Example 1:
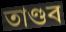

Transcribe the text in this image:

তাণ্ডব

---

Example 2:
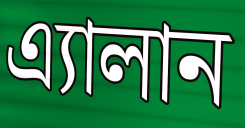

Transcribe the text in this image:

এ্যালান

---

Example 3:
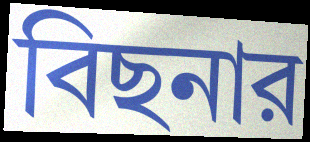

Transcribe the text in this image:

বিছনার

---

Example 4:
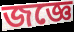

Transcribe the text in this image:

জজ্ঞে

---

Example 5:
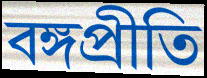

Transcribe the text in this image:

বঙ্গপ্রীতি